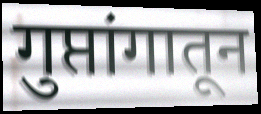
गुप्तांगातून